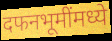
दफनभूमींमध्ये